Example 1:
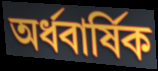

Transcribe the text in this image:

অর্ধবার্ষিক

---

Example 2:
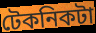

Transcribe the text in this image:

টেকনিকটা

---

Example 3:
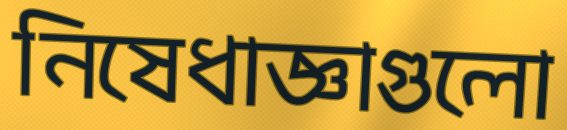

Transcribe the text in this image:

নিষেধাজ্ঞাগুলো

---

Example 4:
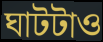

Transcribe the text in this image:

ঘাটটাও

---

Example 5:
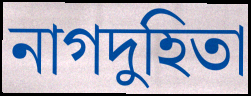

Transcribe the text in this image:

নাগদুহিতা